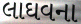
લાઘવના